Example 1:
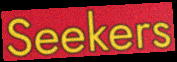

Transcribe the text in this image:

Seekers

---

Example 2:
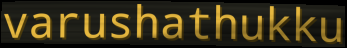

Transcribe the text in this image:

varushathukku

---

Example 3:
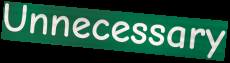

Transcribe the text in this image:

Unnecessary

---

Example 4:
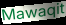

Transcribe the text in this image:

Mawaqit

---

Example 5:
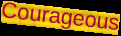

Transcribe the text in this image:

Courageous